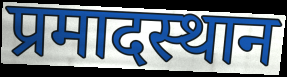
प्रमादस्थान